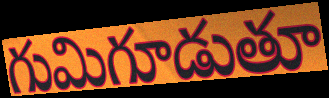
గుమిగూడుతూ